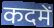
कदमें